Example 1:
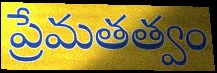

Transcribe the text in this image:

ప్రేమతత్వం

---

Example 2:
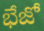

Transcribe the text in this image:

భేజో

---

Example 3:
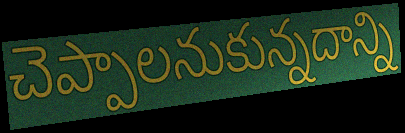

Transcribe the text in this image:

చెప్పాలనుకున్నదాన్ని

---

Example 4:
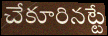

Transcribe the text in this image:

చేకూరినట్టే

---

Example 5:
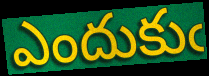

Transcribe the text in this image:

ఎందుకుఁ